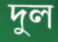
দুল